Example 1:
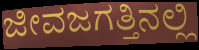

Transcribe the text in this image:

ಜೀವಜಗತ್ತಿನಲ್ಲಿ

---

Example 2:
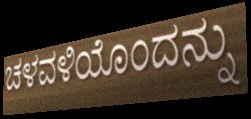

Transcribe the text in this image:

ಚಳವಳಿಯೊಂದನ್ನು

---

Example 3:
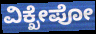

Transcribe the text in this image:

ವಿಕ್ಖೇಪೋ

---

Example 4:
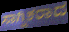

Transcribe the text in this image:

ಸಾಗ್ನಿಕರಾದ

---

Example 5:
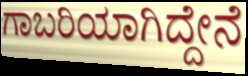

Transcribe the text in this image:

ಗಾಬರಿಯಾಗಿದ್ದೇನೆ